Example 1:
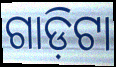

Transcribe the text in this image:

ଗାଡ଼ିଟା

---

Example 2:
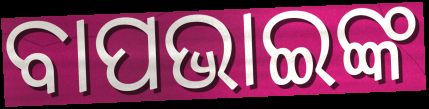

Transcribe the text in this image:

ବାପଭାଇଙ୍କ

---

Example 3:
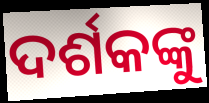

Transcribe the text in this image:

ଦର୍ଶକଙ୍କୁ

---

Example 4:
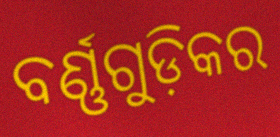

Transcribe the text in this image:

ବର୍ଣ୍ଣଗୁଡ଼ିକର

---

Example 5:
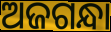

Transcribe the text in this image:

ଅଜଗନ୍ଧା